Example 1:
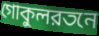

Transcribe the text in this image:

গোকুলরতনে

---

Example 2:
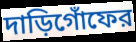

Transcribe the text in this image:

দাড়িগোঁফের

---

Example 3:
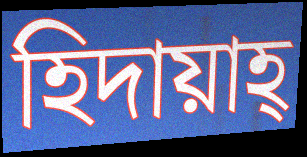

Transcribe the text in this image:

হিদায়াহ্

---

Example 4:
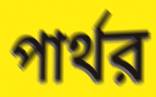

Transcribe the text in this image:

পার্থর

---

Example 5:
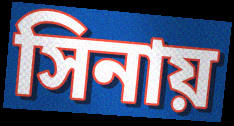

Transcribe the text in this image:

সিনায়